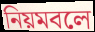
নিয়মবলে